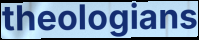
theologians